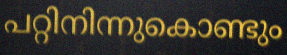
പറ്റിനിന്നുകൊണ്ടും